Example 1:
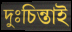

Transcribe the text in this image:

দুঃচিন্তাই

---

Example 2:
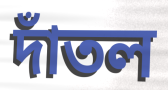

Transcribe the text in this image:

দাঁতল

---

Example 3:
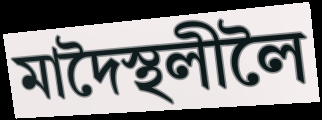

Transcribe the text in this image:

মাদৈস্থলীলৈ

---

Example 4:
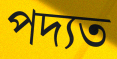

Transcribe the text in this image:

পদ্যত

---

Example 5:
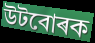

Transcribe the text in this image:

উটবোৰক